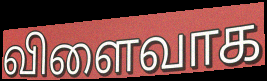
விளைவாக